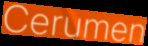
Cerumen